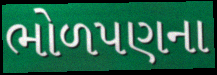
ભોળપણના